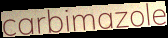
carbimazole